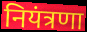
नियंत्रणा